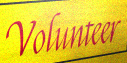
Volunteer